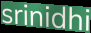
srinidhi